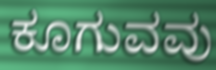
ಕೂಗುವವು